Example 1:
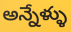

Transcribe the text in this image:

అన్నేళ్ళు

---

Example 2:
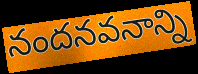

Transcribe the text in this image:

నందనవనాన్ని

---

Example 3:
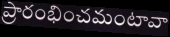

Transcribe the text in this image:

ప్రారంభించమంటావా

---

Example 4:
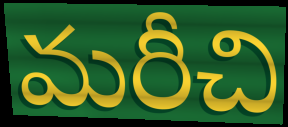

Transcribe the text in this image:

మరీచి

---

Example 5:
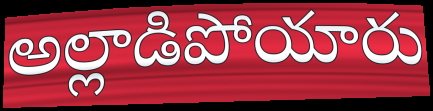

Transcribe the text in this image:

అల్లాడిపోయారు